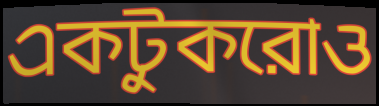
একটুকরোও